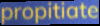
propitiate